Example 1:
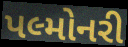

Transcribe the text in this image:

પલ્મોનરી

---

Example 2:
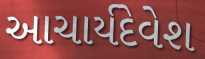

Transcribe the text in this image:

આચાર્યદેવેશ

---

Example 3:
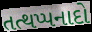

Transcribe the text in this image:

તત્થપ્પનાદો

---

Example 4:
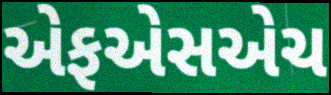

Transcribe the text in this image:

એફએસએચ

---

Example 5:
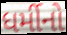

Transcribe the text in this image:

ધર્મીનો